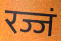
रज्जं